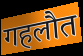
गहलौत